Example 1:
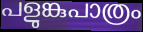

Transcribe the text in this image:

പളുങ്കുപാത്രം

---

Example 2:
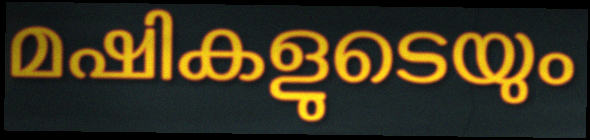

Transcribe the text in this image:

മഷികളുടെയും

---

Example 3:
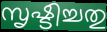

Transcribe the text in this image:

സൃഷ്ടിച്ചതു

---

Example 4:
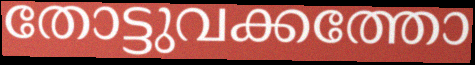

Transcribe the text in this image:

തോട്ടുവക്കത്തോ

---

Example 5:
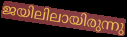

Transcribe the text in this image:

ജയിലിലായിരുന്നു